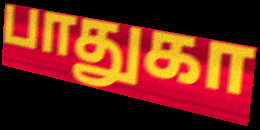
பாதுகா